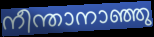
നീന്താനാഞ്ഞു